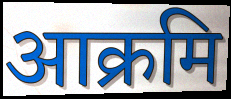
आक्रमि